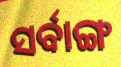
ସର୍ବାଙ୍ଗ